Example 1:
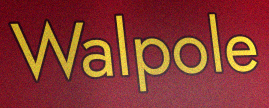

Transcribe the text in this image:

Walpole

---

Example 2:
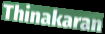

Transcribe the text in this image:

Thinakaran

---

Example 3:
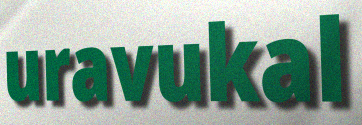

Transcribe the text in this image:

uravukal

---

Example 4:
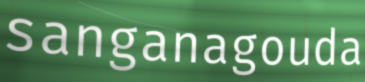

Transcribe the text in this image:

sanganagouda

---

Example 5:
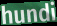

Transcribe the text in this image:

hundi